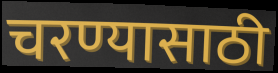
चरण्यासाठी